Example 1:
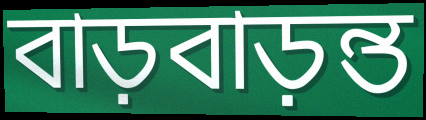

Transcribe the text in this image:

বাড়বাড়ন্ত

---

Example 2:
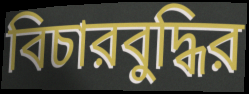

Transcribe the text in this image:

বিচারবুদ্ধির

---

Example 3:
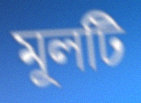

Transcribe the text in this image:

মূলটি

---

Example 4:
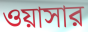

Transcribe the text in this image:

ওয়াসার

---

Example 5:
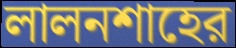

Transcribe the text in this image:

লালনশাহের